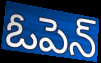
ఓపెన్